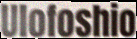
Ulofoshio